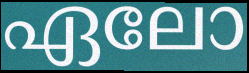
ഏലോ